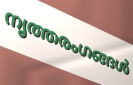
നൃത്തരംഗങ്ങൾ